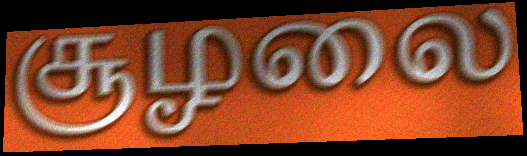
சூழலை